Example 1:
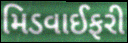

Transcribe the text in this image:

મિડવાઈફરી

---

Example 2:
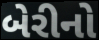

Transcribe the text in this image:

બેરીનો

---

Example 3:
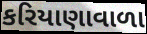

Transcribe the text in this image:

કરિયાણાવાળા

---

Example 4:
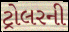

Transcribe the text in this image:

ટ્રોલરની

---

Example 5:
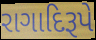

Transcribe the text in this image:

રાગાદિરૂપે